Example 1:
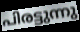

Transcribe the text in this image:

പിരട്ടുന്നു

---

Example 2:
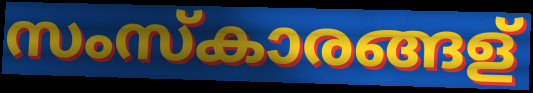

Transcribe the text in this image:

സംസ്കാരങ്ങള്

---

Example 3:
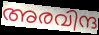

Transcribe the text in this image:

അരവിന്ദ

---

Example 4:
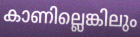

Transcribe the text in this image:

കാണില്ലെങ്കിലും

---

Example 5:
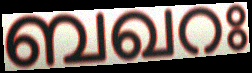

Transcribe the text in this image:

ബഖറഃ